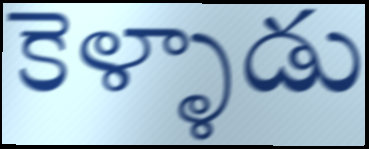
కెళ్ళాడు